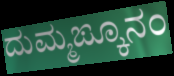
ದುಮ್ಮಙ್ಕೂನಂ